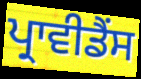
ਪ੍ਰਾਵੀਡੈਂਸ